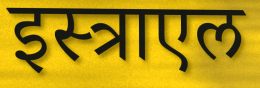
इस्त्राएल